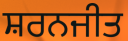
ਸ਼ਰਨਜੀਤ